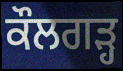
ਕੌਲਗੜ੍ਹ